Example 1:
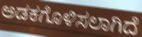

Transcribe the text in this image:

ಅಡಕಗೊಳಿಸಲಾಗಿದೆ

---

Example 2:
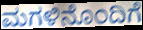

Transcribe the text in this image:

ಮಗಳಿನೊಂದಿಗೆ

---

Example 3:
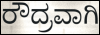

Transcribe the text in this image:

ರೌದ್ರವಾಗಿ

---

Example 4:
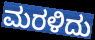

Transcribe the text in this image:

ಮರಳಿದು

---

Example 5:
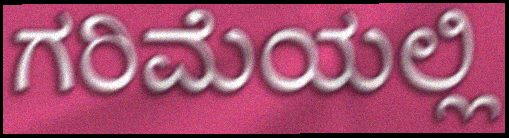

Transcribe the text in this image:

ಗರಿಮೆಯಲ್ಲಿ